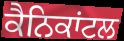
ਕੈਨਿਕਾਂਟਲ